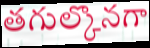
తగుల్కొనగా